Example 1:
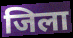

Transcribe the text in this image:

जिला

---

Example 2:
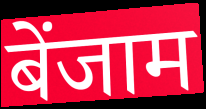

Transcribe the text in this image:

बेंजाम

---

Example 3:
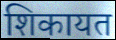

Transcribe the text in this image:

शिकायत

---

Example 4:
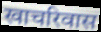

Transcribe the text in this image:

खाचरिवास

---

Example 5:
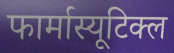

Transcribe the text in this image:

फार्मास्यूटिक्ल